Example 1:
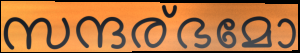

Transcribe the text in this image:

സന്ദര്ഭമോ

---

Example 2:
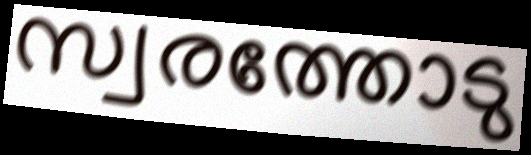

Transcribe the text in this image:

സ്വരത്തോടു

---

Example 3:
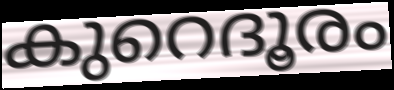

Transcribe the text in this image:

കുറെദൂരം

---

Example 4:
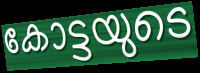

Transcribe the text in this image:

കോട്ടയുടെ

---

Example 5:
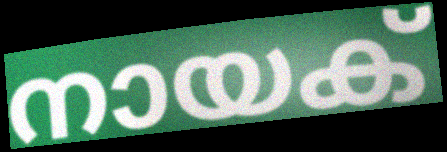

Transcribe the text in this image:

നായക്